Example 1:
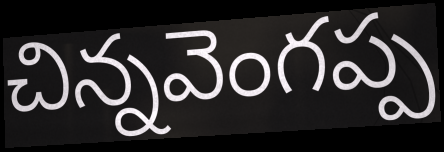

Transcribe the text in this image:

చిన్నవెంగప్ప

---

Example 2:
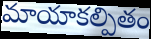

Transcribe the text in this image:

మాయాకల్పితం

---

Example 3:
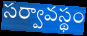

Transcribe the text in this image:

సర్వావస్థం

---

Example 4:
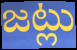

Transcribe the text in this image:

జట్లు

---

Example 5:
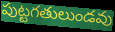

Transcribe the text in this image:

పుట్టగతులుండవు